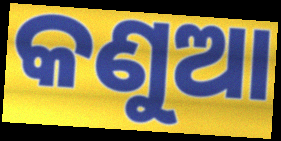
କଣୁଆ